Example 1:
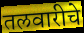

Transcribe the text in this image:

तलवारीचे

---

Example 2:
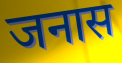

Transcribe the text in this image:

जनास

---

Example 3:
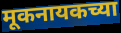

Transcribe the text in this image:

मूकनायकच्या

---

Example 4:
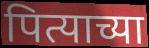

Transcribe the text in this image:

पित्याच्या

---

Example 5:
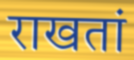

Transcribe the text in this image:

राखतां